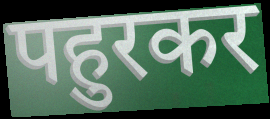
पहुरकर